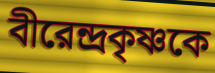
বীরেন্দ্রকৃষ্ণকে